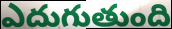
ఎదుగుతుంది